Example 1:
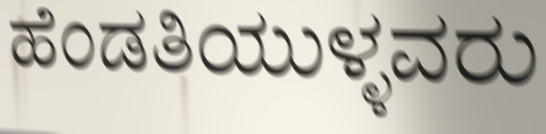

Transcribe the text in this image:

ಹೆಂಡತಿಯುಳ್ಳವರು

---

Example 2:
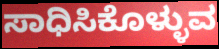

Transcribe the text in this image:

ಸಾಧಿಸಿಕೊಳ್ಳುವ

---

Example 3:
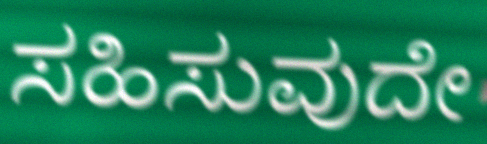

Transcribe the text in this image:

ಸಹಿಸುವುದೇ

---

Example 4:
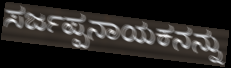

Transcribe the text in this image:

ಸರ್ಜಪ್ಪನಾಯಕನನ್ನು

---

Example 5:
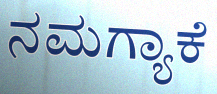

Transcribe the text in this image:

ನಮಗ್ಯಾಕೆ